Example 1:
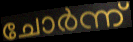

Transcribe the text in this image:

ചോർന്ന്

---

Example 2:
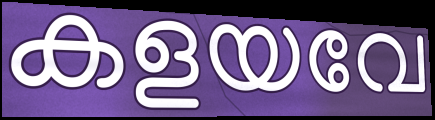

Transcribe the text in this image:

കളയവേ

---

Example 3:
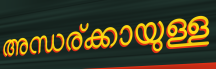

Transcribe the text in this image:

അന്ധര്ക്കായുള്ള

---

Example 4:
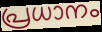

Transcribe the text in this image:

പ്രധാനം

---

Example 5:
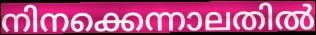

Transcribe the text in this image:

നിനക്കെന്നാലതിൽ